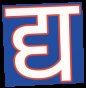
द्य